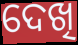
ଦେଖି